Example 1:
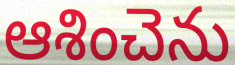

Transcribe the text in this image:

ఆశించెను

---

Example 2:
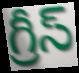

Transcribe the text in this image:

గ్రీస్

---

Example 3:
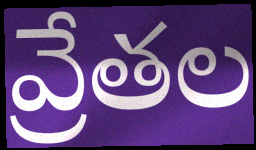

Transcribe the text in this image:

వ్రేతల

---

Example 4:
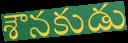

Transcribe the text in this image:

శౌనకుడు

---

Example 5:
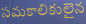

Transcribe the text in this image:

సమకాలికులైన